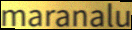
maranalu